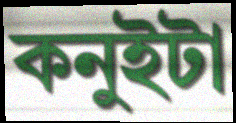
কনুইটা